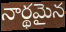
నార్థమైన